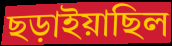
ছড়াইয়াছিল